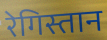
रेगिस्तान